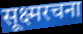
सूक्ष्मरचना